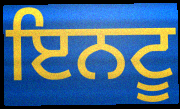
ਇਨਟੂ